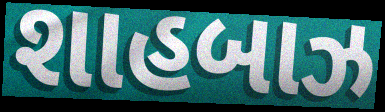
શાહબાઝ